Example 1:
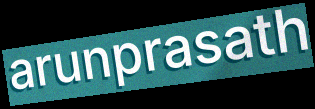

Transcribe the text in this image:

arunprasath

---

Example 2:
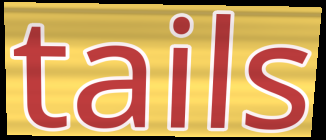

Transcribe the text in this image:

tails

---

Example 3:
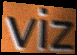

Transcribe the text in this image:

viz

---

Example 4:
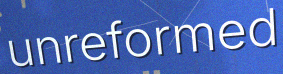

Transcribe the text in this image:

unreformed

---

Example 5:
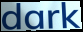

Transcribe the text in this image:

dark